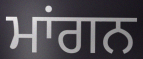
ਮਾਂਗਨ